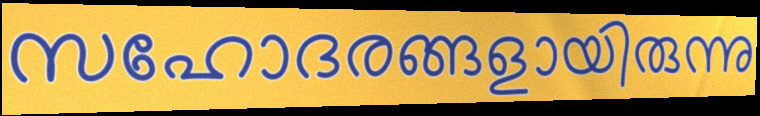
സഹോദരങ്ങളായിരുന്നു